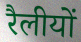
रैलीयों